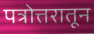
पत्रोत्तरातून